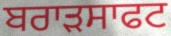
ਬਰਾੜਸਾਫਟ